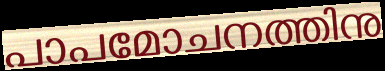
പാപമോചനത്തിനു